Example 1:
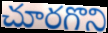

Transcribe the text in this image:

చూరగొని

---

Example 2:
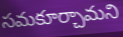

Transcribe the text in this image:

సమకూర్చామని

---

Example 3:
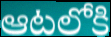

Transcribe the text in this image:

ఆటలోకి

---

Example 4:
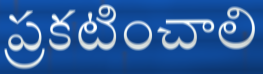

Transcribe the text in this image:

ప్రకటించాలి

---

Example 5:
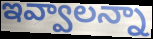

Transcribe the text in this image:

ఇవ్వాలన్నా